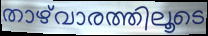
താഴ്‌വാരത്തിലൂടെ